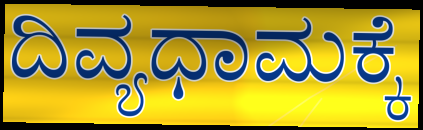
ದಿವ್ಯಧಾಮಕ್ಕೆ